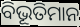
ବିଭୂତିମାନ